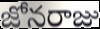
జోనరాజు